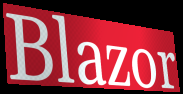
Blazor